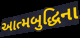
આત્મબુદ્ધિના